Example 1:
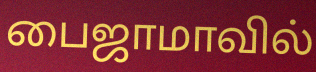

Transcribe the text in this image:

பைஜாமாவில்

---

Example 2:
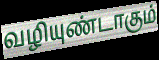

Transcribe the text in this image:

வழியுண்டாகும்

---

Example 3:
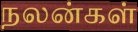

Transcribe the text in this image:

நலன்கள்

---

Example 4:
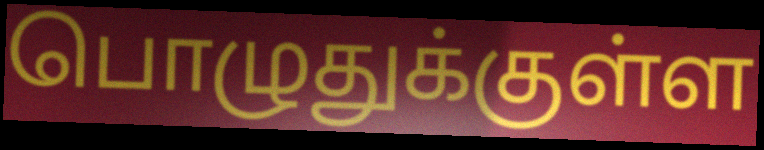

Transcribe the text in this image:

பொழுதுக்குள்ள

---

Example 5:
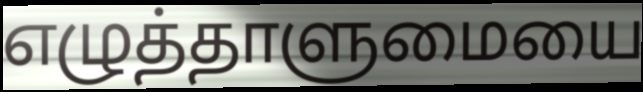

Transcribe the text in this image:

எழுத்தாளுமையை